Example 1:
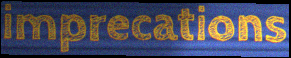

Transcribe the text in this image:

imprecations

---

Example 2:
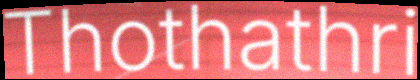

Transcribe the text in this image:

Thothathri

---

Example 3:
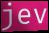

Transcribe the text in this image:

jev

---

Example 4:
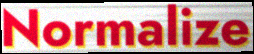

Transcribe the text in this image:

Normalize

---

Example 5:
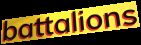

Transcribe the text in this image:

battalions